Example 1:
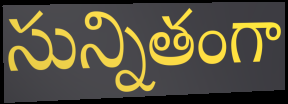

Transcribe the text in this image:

సున్నితంగా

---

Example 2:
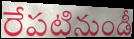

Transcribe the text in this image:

రేపటినుండీ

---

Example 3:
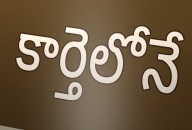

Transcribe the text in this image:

కార్తెలోనే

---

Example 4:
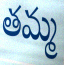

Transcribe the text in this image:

తమ్మ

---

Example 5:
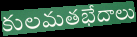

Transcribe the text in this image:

కులమతభేదాలు